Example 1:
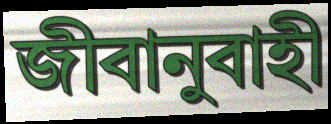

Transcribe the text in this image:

জীবানুবাহী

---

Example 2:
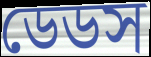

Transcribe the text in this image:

ডেডস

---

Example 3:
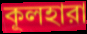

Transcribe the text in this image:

কূলহারা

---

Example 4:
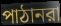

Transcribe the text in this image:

পাঠানরা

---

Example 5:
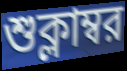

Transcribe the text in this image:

শুক্লাম্বর